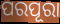
ପରପୂରା